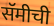
सॅमीची